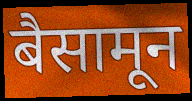
बैसामून